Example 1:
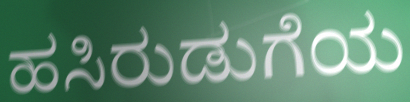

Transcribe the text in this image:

ಹಸಿರುಡುಗೆಯ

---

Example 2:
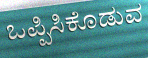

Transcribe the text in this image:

ಒಪ್ಪಿಸಿಕೊಡುವ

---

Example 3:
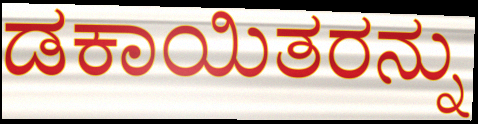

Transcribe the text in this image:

ಡಕಾಯಿತರನ್ನು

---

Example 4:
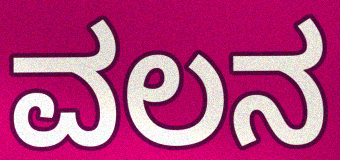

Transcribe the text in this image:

ವಲನ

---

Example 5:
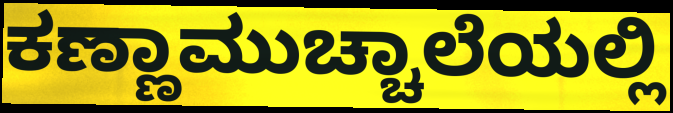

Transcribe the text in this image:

ಕಣ್ಣಾಮುಚ್ಚಾಲೆಯಲ್ಲಿ